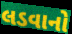
લડવાનો